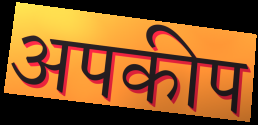
अपकीप